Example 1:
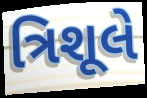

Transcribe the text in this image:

ત્રિશૂલે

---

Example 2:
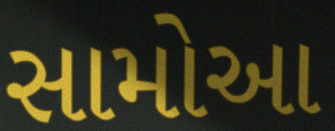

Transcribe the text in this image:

સામોઆ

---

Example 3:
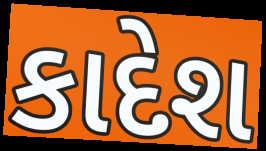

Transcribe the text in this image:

કાદેશ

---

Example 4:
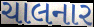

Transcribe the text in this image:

ચાલનાર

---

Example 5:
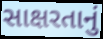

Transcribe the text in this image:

સાક્ષરતાનું